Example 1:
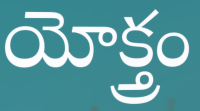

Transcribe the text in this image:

యోక్త్రం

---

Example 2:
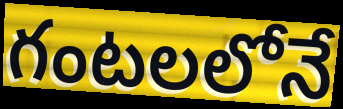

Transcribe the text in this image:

గంటలలోనే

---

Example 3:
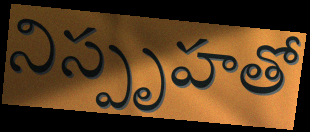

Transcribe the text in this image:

నిస్పృహతో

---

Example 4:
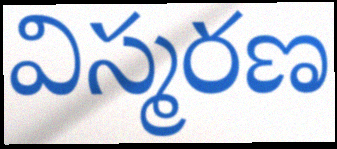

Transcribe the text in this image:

విస్మరణ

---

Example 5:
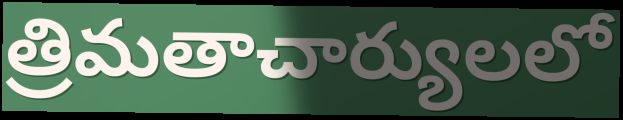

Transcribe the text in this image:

త్రిమతాచార్యులలో